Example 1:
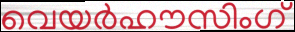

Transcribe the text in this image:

വെയർഹൗസിംഗ്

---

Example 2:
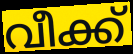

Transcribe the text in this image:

വീക്ക്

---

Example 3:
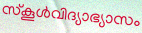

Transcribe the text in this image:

സ്കൂൾവിദ്യാഭ്യാസം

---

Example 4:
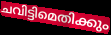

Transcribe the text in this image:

ചവിട്ടിമെതിക്കും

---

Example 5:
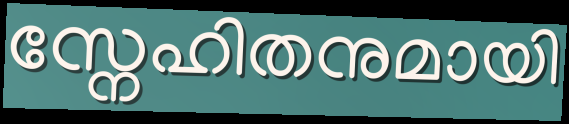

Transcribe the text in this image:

സ്നേഹിതനുമായി